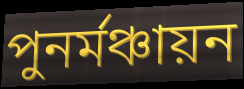
পুনর্মঞ্চায়ন